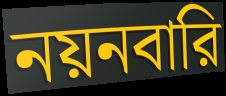
নয়নবারি